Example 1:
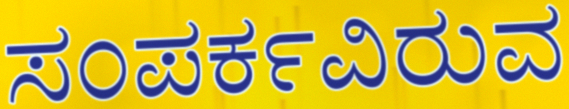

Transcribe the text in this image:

ಸಂಪರ್ಕವಿರುವ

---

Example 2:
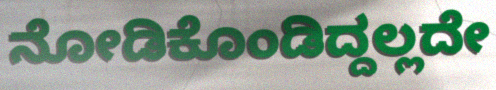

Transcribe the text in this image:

ನೋಡಿಕೊಂಡಿದ್ದಲ್ಲದೇ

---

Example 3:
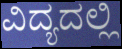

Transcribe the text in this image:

ವಿದ್ಯದಲ್ಲಿ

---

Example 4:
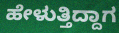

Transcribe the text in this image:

ಹೇಳುತ್ತಿದ್ದಾಗ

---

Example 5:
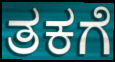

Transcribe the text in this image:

ತಕಗೆ